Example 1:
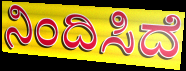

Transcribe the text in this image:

ನಿಂದಿಸಿದೆ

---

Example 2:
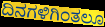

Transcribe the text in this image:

ದಿನಗಳಿಗಿಂತಲೂ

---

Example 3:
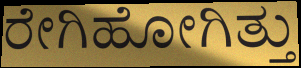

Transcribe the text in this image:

ರೇಗಿಹೋಗಿತ್ತು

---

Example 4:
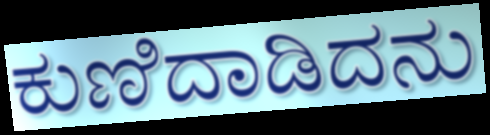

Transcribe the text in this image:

ಕುಣಿದಾಡಿದನು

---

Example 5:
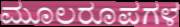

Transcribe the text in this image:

ಮೂಲರೂಪಗಳ